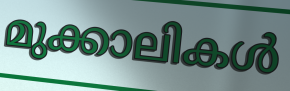
മുക്കാലികൾ